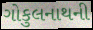
ગોકુલનાથની